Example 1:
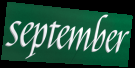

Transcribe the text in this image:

september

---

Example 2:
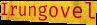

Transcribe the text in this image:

Irungovel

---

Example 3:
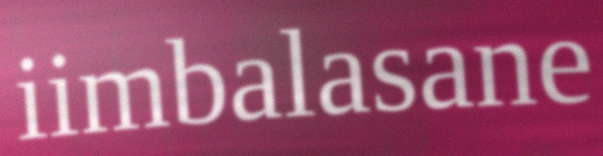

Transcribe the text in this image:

iimbalasane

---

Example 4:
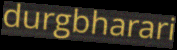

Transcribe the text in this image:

durgbharari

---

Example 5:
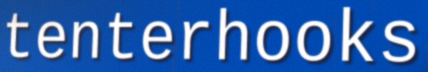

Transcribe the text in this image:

tenterhooks